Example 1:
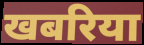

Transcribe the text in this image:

खबरिया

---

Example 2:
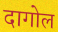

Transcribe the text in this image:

दागोल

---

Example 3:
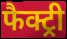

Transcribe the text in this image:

फैक्ट्री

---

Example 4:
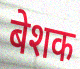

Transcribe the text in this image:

बेशक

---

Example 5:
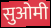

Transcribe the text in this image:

सुओमी